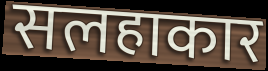
सलहाकार